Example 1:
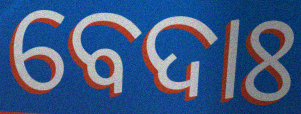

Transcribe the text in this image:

ବେଦାଃ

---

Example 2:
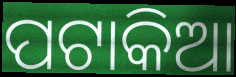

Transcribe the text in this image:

ପଟାକିଆ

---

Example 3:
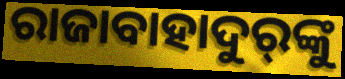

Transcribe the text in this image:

ରାଜାବାହାଦୁର୍‍ଙ୍କୁ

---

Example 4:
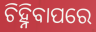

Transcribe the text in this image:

ଚିହ୍ନିବାପରେ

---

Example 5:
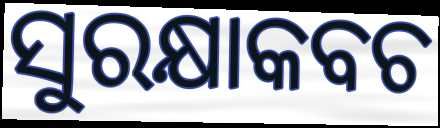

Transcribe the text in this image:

ସୁରକ୍ଷାକବଚ